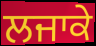
ਲਜਾਕੇ